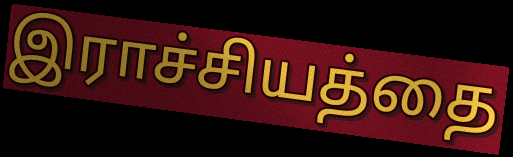
இராச்சியத்தை